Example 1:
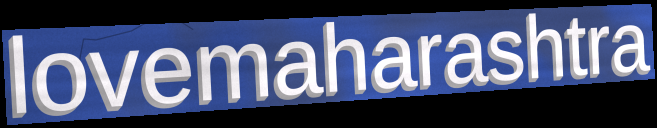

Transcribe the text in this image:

lovemaharashtra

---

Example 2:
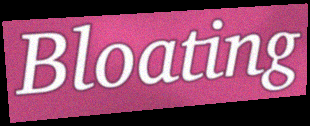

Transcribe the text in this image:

Bloating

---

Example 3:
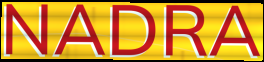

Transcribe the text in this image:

NADRA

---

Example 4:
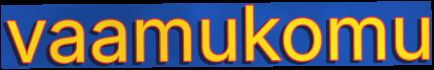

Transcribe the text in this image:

vaamukomu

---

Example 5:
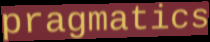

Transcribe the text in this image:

pragmatics